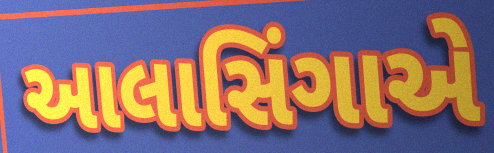
આલાસિંગાએ